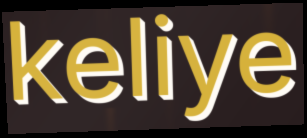
keliye